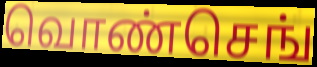
வொண்செங்